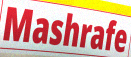
Mashrafe